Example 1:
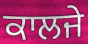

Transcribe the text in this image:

ਕਾਲਜੇ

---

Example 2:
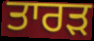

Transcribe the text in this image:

ਤਾਰੜ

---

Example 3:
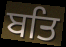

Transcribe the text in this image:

ਬਤਿ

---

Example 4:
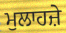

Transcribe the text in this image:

ਮੁਲਾਹਜ਼ੇ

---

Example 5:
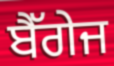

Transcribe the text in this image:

ਬੈੱਗੇਜ